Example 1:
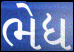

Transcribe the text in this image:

ભેદ્ય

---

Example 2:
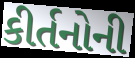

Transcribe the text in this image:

કીર્તનોની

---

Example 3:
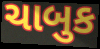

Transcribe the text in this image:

ચાબુક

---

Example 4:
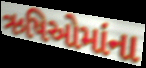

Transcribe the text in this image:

ઋષિઓમાંના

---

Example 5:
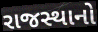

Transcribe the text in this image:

રાજસ્થાનો